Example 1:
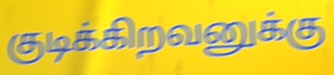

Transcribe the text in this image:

குடிக்கிறவனுக்கு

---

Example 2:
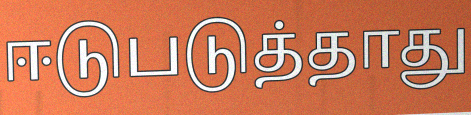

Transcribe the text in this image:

ஈடுபடுத்தாது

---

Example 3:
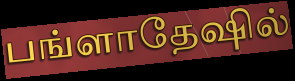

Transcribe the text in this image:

பங்ளாதேஷில்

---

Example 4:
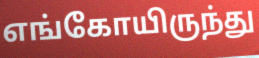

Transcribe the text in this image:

எங்கோயிருந்து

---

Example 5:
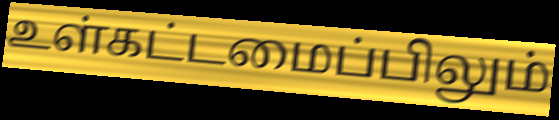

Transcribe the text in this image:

உள்கட்டமைப்பிலும்